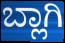
ಬ್ಲಾಗಿ